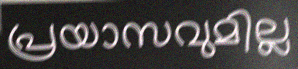
പ്രയാസവുമില്ല